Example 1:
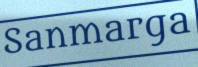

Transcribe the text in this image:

Sanmarga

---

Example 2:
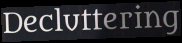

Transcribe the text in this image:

Decluttering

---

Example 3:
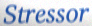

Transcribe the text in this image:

Stressor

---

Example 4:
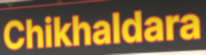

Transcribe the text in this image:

Chikhaldara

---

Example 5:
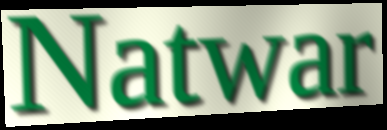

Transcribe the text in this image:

Natwar